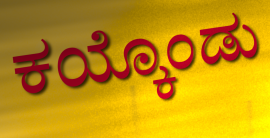
ಕಯ್ಕೊಂಡು